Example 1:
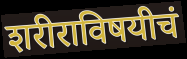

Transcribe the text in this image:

शरीराविषयीचं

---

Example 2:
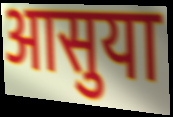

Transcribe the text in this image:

आसुया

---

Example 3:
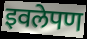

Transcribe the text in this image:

इवलेपण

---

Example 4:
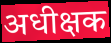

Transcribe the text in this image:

अधीक्षक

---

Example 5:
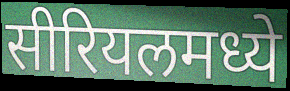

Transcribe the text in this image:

सीरियलमध्ये